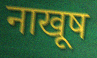
नाखूष